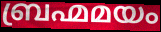
ബ്രഹ്മമയം